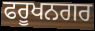
ਫਰੂਖਨਗਰ